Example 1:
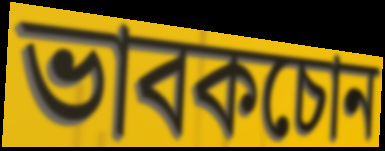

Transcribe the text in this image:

ভাবকচোন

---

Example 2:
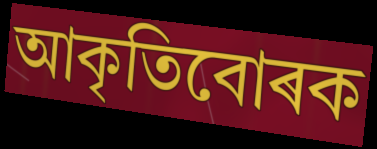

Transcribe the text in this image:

আকৃতিবোৰক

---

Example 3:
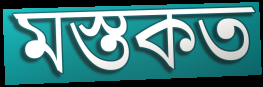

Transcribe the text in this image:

মস্তকত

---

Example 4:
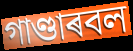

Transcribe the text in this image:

গাণ্ডাৰবল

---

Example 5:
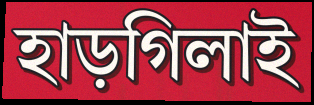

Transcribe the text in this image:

হাড়গিলাই